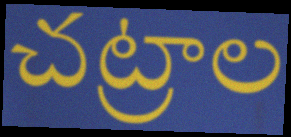
చట్రాల